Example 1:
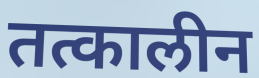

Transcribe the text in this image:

तत्कालीन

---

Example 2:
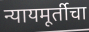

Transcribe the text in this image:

न्यायमूर्तीचा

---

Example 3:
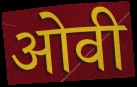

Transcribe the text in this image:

ओवी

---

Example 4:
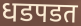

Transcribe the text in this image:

धडपडत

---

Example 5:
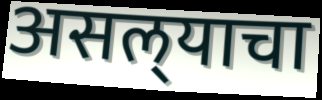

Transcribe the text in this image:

असल्याचा